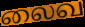
லைவ